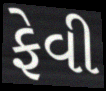
ફેવી